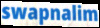
swapnalim